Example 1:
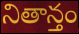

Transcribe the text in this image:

నితాన్తం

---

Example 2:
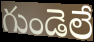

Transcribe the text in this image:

గుండెలే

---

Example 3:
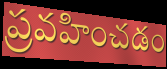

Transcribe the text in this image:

ప్రవహించడం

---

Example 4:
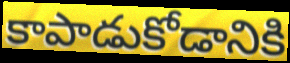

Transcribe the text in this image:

కాపాడుకోడానికి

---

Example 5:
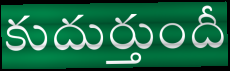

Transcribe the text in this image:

కుదుర్తుందీ